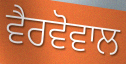
ਵੈਰਵੋਵਾਲ